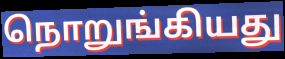
நொறுங்கியது